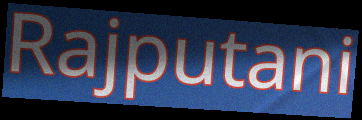
Rajputani